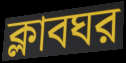
ক্লাবঘর